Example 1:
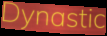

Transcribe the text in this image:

Dynastic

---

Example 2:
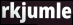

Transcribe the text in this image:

rkjumle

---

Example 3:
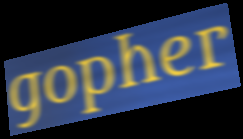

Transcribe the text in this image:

gopher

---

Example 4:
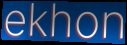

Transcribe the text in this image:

ekhon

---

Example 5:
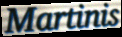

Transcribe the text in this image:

Martinis